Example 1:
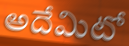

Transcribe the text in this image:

అదేమిటో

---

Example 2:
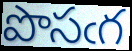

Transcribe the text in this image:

పొసఁగ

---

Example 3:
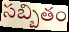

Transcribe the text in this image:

సబ్బితం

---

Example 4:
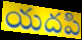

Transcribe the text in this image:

యదపి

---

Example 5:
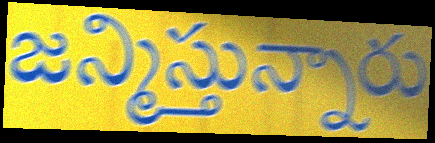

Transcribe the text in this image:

జన్మిస్తున్నారు